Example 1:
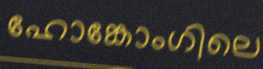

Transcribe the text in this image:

ഹോങ്കോംഗിലെ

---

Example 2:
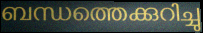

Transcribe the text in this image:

ബന്ധത്തെക്കുറിച്ചു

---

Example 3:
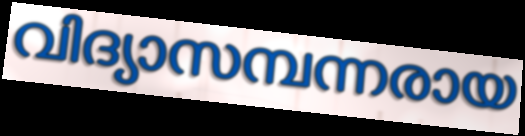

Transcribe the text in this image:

വിദ്യാസമ്പന്നരായ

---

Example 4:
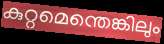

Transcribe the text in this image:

കുറ്റമെന്തെങ്കിലും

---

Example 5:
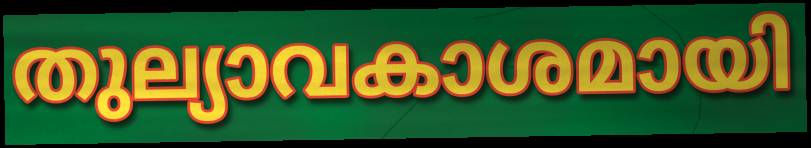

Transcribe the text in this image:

തുല്യാവകാശമായി